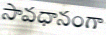
సావధానంగా